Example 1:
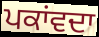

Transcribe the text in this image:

ਪਕਾਂਵਦਾ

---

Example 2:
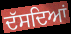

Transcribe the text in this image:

ਦੱਸਦਿਆਂ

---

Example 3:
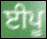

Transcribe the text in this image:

ਈਪੂ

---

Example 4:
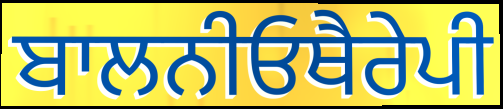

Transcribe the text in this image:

ਬਾਲਨੀਓਥੈਰੇਪੀ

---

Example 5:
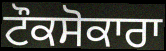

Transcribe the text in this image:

ਟੌਕਸੋਕਾਰਾ